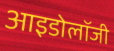
आइडोलॉजी